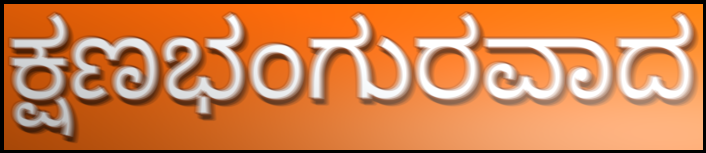
ಕ್ಷಣಭಂಗುರವಾದ